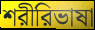
শরীরিভাষা